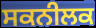
ਸਕਨੀਲਕ